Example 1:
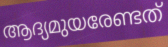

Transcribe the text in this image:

ആദ്യമുയരേണ്ടത്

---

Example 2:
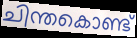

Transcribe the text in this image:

ചിന്തകൊണ്ട്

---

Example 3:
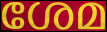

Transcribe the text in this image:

ശേമ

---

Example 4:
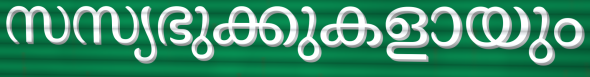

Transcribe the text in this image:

സസ്യഭുക്കുകളായും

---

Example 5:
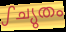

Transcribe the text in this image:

ഽച്യുതം